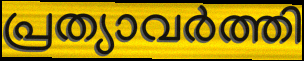
പ്രത്യാവർത്തി